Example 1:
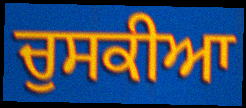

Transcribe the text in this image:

ਚੁਸਕੀਆ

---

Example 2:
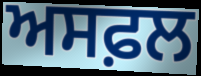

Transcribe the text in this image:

ਅਸਫ਼ਲ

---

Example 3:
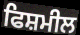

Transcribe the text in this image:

ਫਿਸ਼ਮੀਲ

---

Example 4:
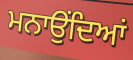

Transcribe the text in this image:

ਮਨਾਉਂਦਿਆਂ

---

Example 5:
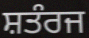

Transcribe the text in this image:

ਸ਼ਤੰਰਜ